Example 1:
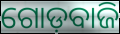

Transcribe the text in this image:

ଗୋଡ଼ବାଜି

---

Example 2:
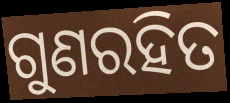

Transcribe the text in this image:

ଗୁଣରହିତ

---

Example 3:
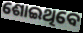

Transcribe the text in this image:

ଶୋଇଥିବେ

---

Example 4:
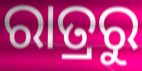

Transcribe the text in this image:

ରାତ୍ରରୁ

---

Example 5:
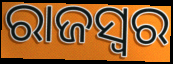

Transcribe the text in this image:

ରାଜସ୍ୱର